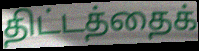
திட்டத்தைக்